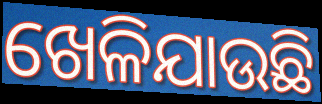
ଖେଳିଯାଉଛି